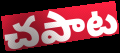
చపాట